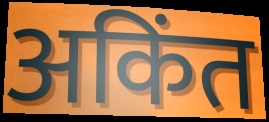
अकिंत